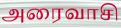
அரைவாசி